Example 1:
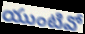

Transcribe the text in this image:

యుంటివో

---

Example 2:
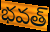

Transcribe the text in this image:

భవత్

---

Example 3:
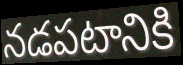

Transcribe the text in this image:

నడపటానికి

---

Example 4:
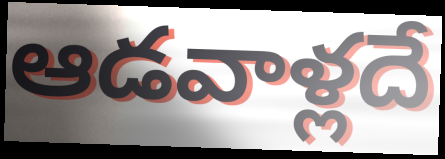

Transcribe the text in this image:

ఆడవాళ్లదే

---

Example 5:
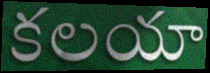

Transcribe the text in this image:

కలయా